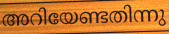
അറിയേണ്ടതിന്നു